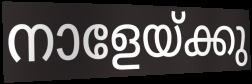
നാളേയ്ക്കു